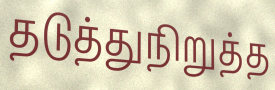
தடுத்துநிறுத்த